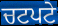
ਚਟਪਟੇ